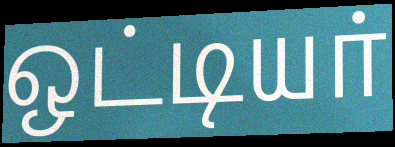
ஒட்டியர்